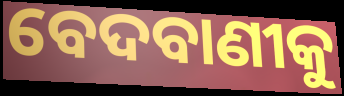
ବେଦବାଣୀକୁ